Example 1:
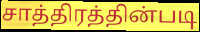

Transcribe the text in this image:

சாத்திரத்தின்படி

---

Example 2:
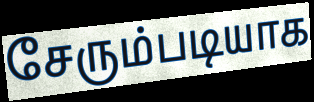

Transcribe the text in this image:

சேரும்படியாக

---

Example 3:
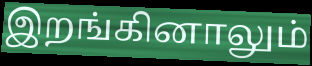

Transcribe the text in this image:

இறங்கினாலும்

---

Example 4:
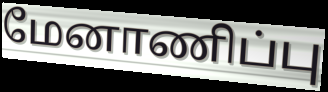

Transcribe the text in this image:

மேனாணிப்பு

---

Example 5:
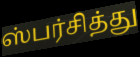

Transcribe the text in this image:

ஸ்பர்சித்து